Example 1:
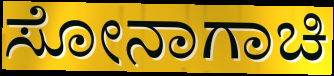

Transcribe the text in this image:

ಸೋನಾಗಾಚಿ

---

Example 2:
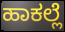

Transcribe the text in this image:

ಹಾಕಲ್ಲೆ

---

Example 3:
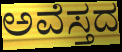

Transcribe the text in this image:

ಅವೆಸ್ತದ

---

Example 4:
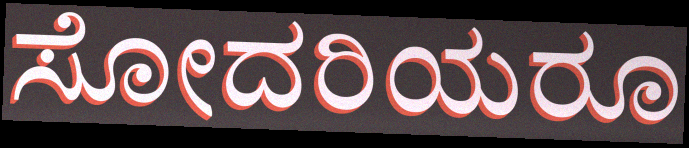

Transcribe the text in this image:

ಸೋದರಿಯರೂ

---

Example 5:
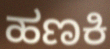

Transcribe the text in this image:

ಹಣಕಿ